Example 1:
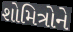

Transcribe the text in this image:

શોમિત્રોને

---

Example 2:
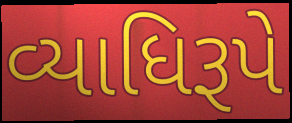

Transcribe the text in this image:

વ્યાધિરૂપે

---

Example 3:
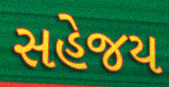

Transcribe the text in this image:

સહેજય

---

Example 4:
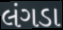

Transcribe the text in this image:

લંગડા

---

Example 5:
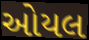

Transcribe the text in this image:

ઓયલ